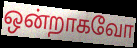
ஒன்றாகவோ